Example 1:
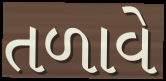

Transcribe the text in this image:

તળાવે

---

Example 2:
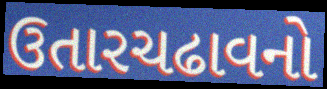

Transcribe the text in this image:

ઉતારચઢાવનો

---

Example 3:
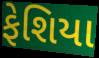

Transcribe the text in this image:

ફેશિયા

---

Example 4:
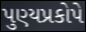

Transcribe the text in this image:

પુણ્યપ્રકોપે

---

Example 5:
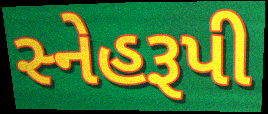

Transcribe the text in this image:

સ્નેહરૂપી